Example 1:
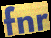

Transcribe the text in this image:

fnr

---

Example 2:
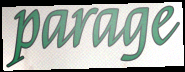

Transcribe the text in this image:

parage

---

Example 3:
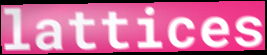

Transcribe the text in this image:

lattices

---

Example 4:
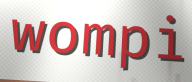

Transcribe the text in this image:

wompi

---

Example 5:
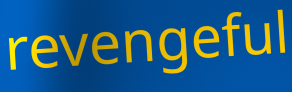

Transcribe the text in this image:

revengeful